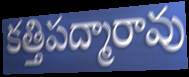
కత్తిపద్మారావు